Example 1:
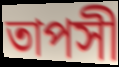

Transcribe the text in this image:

তাপসী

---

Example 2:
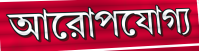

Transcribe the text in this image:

আরোপযোগ্য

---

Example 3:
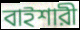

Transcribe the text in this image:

বাইশারী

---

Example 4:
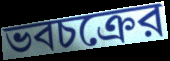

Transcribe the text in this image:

ভবচক্রের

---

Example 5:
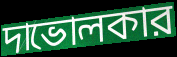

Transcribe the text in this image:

দাভোলকার